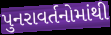
પુનરાવર્તનોમાંથી